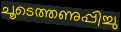
ചൂടെത്തണുപ്പിച്ചു